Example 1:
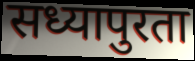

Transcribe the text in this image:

सध्यापुरता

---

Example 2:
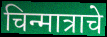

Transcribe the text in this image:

चिन्मात्राचे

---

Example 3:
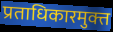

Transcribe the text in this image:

प्रताधिकारमुक्त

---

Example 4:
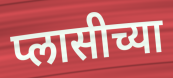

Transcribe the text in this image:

प्लासीच्या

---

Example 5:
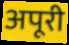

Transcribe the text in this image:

अपूरी